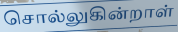
சொல்லுகின்றாள்